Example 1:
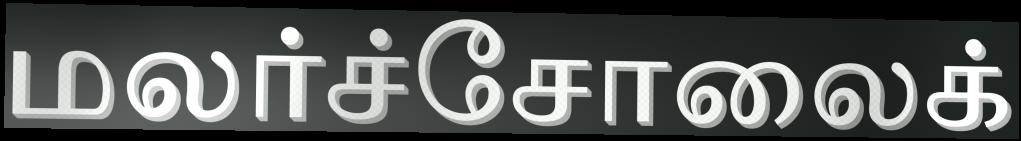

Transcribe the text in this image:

மலர்ச்சோலைக்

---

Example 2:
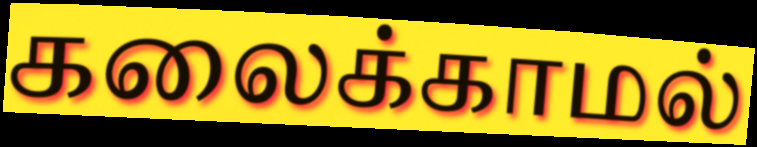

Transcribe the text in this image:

கலைக்காமல்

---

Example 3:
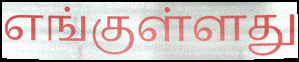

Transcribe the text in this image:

எங்குள்ளது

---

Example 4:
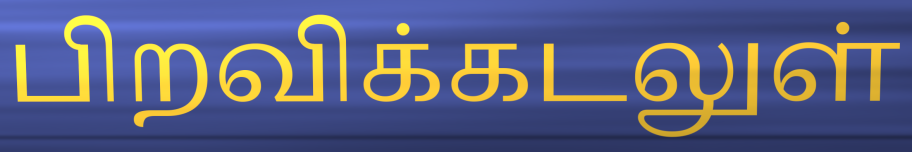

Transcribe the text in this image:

பிறவிக்கடலுள்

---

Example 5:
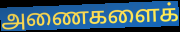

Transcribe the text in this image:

அணைகளைக்